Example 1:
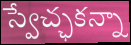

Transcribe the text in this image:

స్వేచ్ఛకన్నా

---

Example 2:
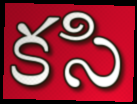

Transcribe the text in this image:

కసి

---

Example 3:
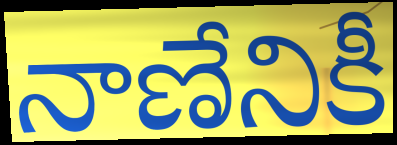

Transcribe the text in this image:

నాణేనికీ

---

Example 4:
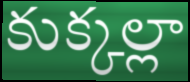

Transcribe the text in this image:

కుక్కల్లా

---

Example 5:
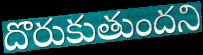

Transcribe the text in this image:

దొరుకుతుందని